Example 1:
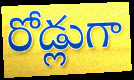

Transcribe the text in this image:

రోడ్లుగా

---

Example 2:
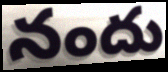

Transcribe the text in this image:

నందు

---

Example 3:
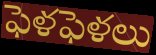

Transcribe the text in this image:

ఫెళఫెళలు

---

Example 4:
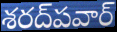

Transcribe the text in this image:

శరద్‌పవార్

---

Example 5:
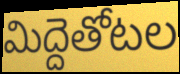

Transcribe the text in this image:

మిద్దెతోటల